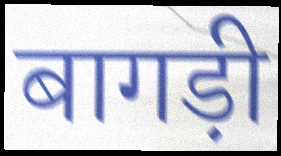
बागड़ी